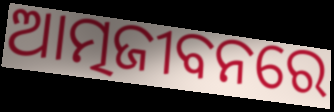
ଆତ୍ମଜୀବନରେ